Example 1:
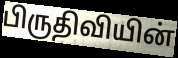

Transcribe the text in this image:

பிருதிவியின்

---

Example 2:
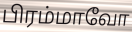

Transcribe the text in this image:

பிரம்மாவோ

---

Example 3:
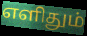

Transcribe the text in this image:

எளிதும்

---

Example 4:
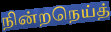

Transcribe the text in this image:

நின்றநெய்த்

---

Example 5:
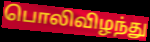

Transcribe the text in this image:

பொலிவிழந்து